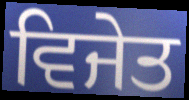
ਵਿਜੇਤ